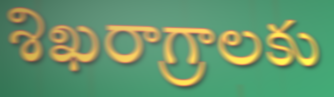
శిఖరాగ్రాలకు